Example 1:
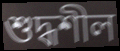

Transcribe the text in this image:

শুদ্ধশীল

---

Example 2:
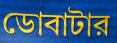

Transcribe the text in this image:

ডোবাটার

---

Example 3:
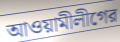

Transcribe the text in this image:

আওয়ামীলীগের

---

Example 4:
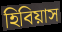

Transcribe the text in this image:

হিবিয়াস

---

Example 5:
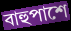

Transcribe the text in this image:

বাহুপাশে